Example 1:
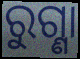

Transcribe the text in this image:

ରୁଗ୍ଣା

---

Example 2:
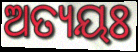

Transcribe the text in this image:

ଅତ୍ୟୟଃ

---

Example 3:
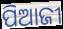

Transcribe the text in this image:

ପିଆଜୀ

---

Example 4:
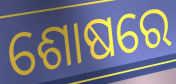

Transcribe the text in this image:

ଶୋଷରେ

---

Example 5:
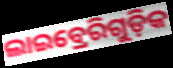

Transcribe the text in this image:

ଲାଇବ୍ରେରିଗୁଡ଼ିକ